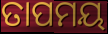
ତାପମୟ